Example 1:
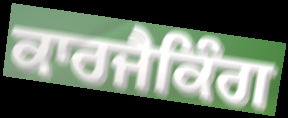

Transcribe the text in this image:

ਕਾਰਜੈਕਿੰਗ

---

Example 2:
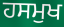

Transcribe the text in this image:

ਹਸਮੁਖ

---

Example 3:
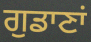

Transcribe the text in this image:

ਗੁਡਾਣਾਂ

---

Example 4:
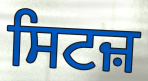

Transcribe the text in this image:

ਸਿਟਜ਼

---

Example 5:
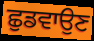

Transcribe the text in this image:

ਛੁਡਵਾਉਣ